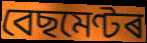
বেছমেণ্টৰ